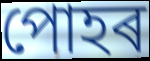
পোহৰ